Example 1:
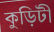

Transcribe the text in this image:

কুড়িটী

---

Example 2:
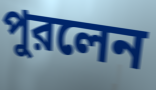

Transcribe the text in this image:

পুরলেন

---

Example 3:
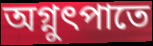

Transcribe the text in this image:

অগ্নুৎপাতে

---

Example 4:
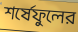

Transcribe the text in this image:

শর্ষেফুলের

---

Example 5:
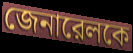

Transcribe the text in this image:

জেনারেলকে